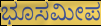
ಭೂಸಮೀಪ